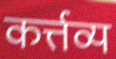
कर्त्तव्य